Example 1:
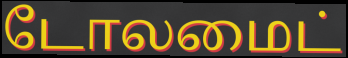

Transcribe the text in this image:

டோலமைட்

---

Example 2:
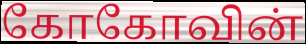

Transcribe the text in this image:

கோகோவின்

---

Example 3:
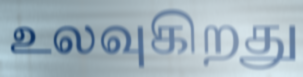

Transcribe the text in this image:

உலவுகிறது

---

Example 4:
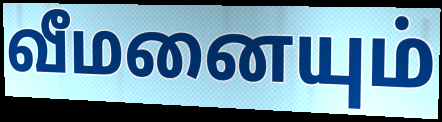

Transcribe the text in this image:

வீமனையும்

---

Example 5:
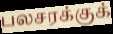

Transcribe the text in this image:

பலசரக்குக்